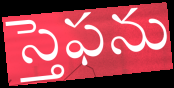
స్తెఫను